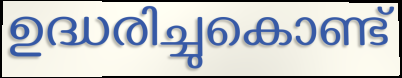
ഉദ്ധരിച്ചുകൊണ്ട്